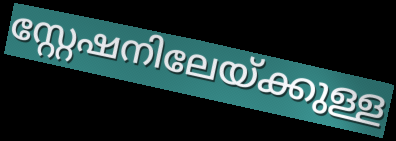
സ്റ്റേഷനിലേയ്ക്കുള്ള